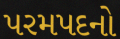
પરમપદનો